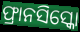
ଫ୍ରାନସିସ୍କୋ